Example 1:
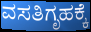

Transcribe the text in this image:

ವಸತಿಗೃಹಕ್ಕೆ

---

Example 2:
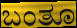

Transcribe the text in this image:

ಬಂತೂ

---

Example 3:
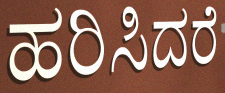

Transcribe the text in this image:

ಹರಿಸಿದರೆ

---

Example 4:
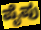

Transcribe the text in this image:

ಪೈಪು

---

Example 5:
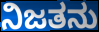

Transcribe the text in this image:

ನಿಜತನು